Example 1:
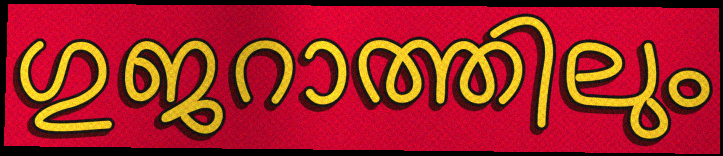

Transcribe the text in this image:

ഗുജറാത്തിലും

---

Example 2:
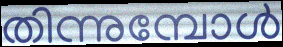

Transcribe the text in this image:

തിന്നുമ്പോൾ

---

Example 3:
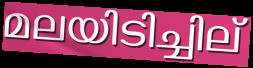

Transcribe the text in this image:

മലയിടിച്ചില്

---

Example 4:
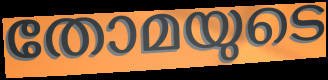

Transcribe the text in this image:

തോമയുടെ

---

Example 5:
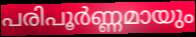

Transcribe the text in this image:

പരിപൂർണ്ണമായും